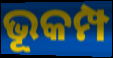
ଭୂକମ୍ପ